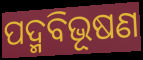
ପଦ୍ମବିଭୂଷଣ